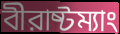
বীরাষ্টম্যাং